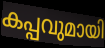
കപ്പവുമായി